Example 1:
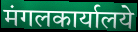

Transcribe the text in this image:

मंगलकार्यालये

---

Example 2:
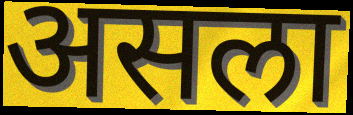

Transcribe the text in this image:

असला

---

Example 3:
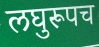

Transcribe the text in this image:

लघुरूपच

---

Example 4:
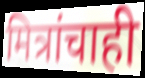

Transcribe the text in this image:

मित्रांचाही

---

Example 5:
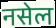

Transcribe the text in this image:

नसेल